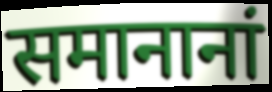
समानानां